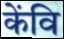
केंवि